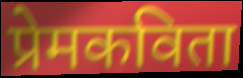
प्रेमकविता